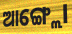
ଆଙ୍ଗ୍ଲୋ